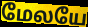
மேலயே